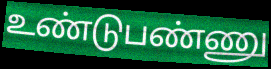
உண்டுபண்ணு